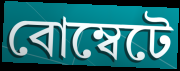
বোম্বেটে